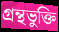
গ্রন্থভুক্তি